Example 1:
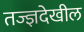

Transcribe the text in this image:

तज्ज्ञदेखील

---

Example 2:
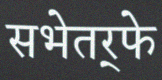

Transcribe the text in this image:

सभेतर्फे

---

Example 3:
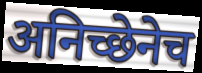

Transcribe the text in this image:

अनिच्छेनेच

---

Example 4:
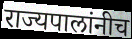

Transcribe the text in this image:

राज्यपालांनीच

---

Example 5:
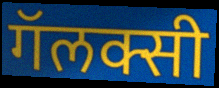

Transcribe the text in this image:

गॅलक्सी